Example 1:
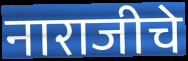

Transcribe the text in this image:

नाराजीचे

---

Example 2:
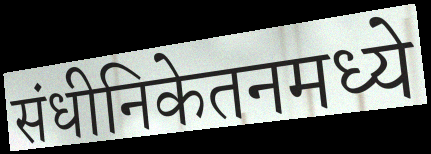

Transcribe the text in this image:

संधीनिकेतनमध्ये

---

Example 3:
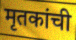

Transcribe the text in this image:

मृतकांची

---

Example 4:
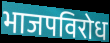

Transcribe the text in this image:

भाजपविरोध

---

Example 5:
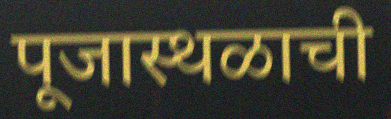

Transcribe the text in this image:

पूजास्थळाची